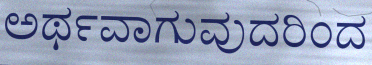
ಅರ್ಥವಾಗುವುದರಿಂದ